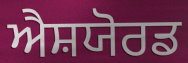
ਐਸ਼ਯੋਰਡ